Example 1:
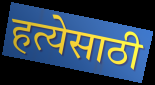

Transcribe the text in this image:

हत्येसाठी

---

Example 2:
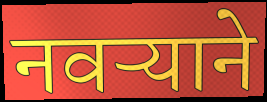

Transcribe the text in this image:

नवऱ्याने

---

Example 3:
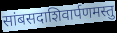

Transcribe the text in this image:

सांबसदाशिवार्पणमस्तु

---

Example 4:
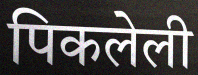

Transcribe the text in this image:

पिकलेली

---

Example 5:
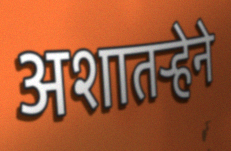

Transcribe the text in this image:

अशातऱ्हेने